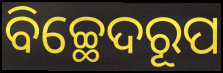
ବିଚ୍ଛେଦରୂପ